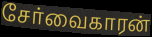
சேர்வைகாரன்